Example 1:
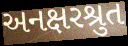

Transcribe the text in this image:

અનક્ષરશ્રુત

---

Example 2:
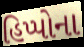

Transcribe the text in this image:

હિપ્પોના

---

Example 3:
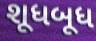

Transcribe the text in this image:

શૂધબૂધ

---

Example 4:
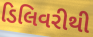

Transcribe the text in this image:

ડિલિવરીથી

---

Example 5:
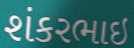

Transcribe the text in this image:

શંકરભાઇ